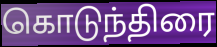
கொடுந்திரை